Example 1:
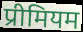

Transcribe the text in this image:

प्रीमियम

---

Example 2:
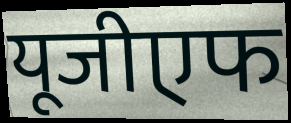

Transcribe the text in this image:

यूजीएफ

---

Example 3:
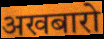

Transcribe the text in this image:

अखबारो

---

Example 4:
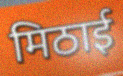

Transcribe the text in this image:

मिठाई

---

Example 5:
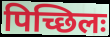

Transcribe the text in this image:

पिच्छिलः